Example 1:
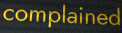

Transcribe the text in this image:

complained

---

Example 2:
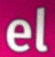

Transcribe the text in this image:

el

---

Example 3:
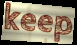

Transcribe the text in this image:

keep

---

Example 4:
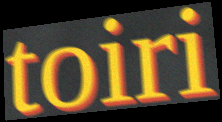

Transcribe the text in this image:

toiri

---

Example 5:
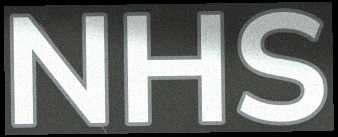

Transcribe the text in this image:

NHS